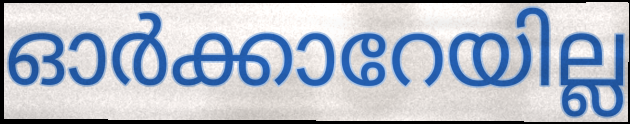
ഓർക്കാറേയില്ല